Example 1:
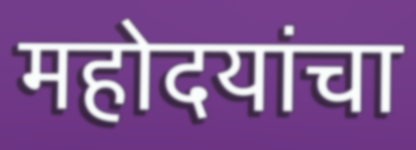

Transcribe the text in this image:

महोदयांचा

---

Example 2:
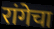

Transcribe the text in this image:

रांगेचा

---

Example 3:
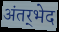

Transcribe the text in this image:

अंतर्भेद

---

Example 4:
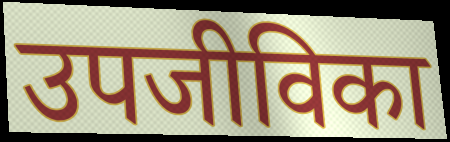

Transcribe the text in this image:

उपजीविका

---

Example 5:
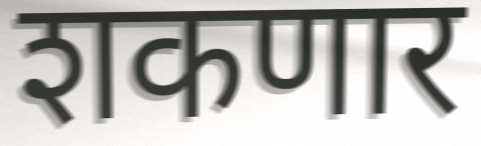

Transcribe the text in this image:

शकणार